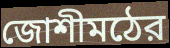
জোশীমঠের